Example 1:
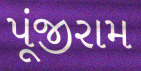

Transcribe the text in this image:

પૂંજીરામ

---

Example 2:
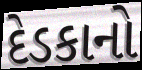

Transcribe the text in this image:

દેડકાનો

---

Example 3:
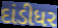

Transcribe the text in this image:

દાંડીધર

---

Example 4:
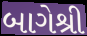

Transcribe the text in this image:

બાગેશ્રી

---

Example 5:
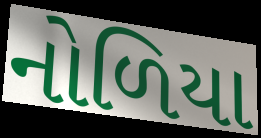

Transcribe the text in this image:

નોળિયા